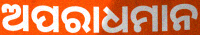
ଅପରାଧମାନ